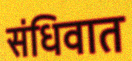
संधिवात